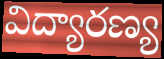
విద్యారణ్య